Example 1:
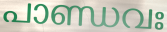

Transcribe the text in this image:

പാണ്ഡവഃ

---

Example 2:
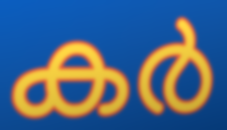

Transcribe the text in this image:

കർ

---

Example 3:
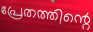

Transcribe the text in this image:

പ്രേതത്തിന്റെ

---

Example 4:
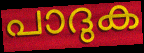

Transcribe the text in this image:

പാദുക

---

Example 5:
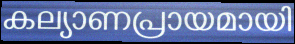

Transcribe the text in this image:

കല്യാണപ്രായമായി